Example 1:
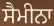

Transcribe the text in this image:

ਸੈਮੀਨਾ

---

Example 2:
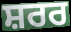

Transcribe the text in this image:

ਸ਼ਰਰ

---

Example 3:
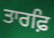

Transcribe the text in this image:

ਤਾਰਫ਼ਿ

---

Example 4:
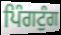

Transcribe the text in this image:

ਪਿੰਗਟੁੰਗ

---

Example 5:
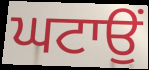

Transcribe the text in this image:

ਘਟਾਉਂ